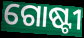
ଗୋଷ୍ଟୀ